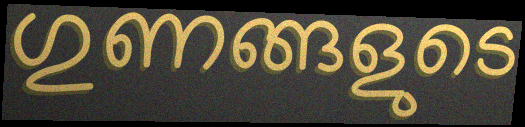
ഗുണങ്ങളുടെ